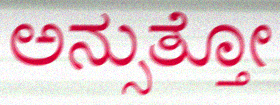
ಅನ್ಸುತ್ತೋ